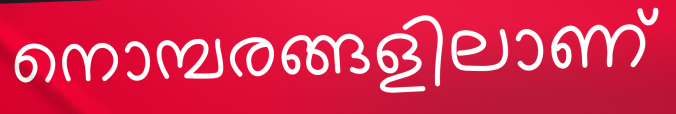
നൊമ്പരങ്ങളിലാണ്